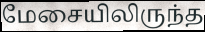
மேசையிலிருந்த